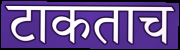
टाकताच